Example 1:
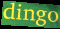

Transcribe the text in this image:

dingo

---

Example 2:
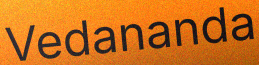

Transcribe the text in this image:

Vedananda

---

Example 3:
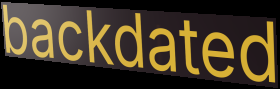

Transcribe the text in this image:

backdated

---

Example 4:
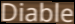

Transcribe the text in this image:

Diable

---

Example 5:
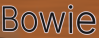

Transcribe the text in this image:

Bowie